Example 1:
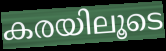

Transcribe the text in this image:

കരയിലൂടെ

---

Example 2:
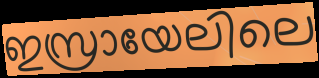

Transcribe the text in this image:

ഇസ്രായേലിലെ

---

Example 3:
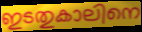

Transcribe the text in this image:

ഇടതുകാലിനെ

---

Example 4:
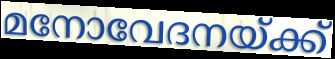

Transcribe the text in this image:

മനോവേദനയ്ക്ക്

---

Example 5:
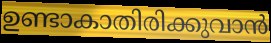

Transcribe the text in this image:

ഉണ്ടാകാതിരിക്കുവാൻ